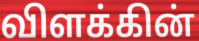
விளக்கின்